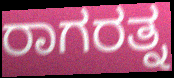
ರಾಗರತ್ನ